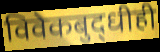
विवेकबुद्धीही